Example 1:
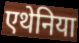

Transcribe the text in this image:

एथेनिया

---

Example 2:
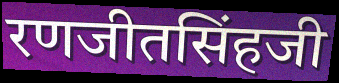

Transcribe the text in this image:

रणजीतसिंहजी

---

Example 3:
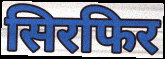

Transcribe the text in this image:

सिरफिर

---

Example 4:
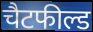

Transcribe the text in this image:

चैटफील्ड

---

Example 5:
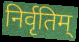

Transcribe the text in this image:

निर्वृतिम्